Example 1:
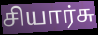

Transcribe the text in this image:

சியார்சு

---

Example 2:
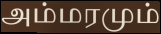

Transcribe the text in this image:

அம்மரமும்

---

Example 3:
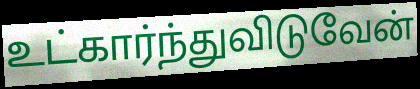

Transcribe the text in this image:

உட்கார்ந்துவிடுவேன்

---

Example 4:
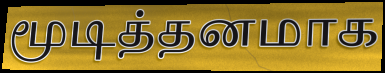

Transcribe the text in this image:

மூடித்தனமாக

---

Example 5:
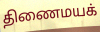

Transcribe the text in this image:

திணைமயக்